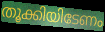
തൂക്കിയിടേണം